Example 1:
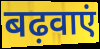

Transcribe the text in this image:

बढ़वाएं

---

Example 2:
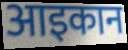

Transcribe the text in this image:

आइकान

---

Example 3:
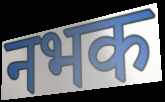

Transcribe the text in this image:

नभक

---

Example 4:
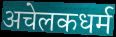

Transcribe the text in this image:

अचेलकधर्म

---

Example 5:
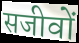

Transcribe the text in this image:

सजीवों